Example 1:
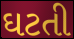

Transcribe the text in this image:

ઘટતી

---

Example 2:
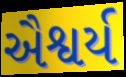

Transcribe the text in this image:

ઐશ્વર્ય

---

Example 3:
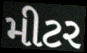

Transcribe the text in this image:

મીટર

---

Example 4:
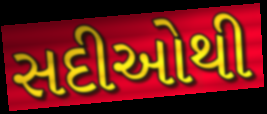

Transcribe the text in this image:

સદીઓથી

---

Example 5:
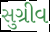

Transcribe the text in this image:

સુગ્રીવ